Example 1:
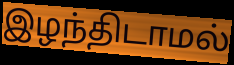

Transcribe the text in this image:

இழந்திடாமல்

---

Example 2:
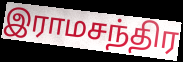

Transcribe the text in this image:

இராமசந்திர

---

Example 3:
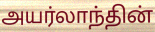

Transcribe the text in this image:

அயர்லாந்தின்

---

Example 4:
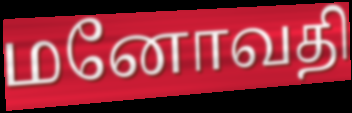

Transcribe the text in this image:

மனோவதி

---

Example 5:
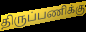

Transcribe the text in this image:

திருப்பணிக்கு